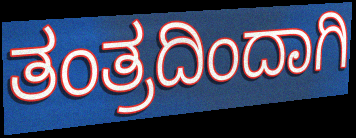
ತಂತ್ರದಿಂದಾಗಿ